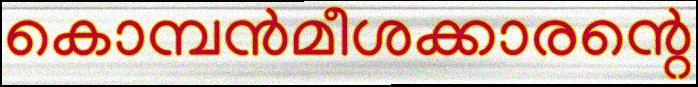
കൊമ്പൻമീശക്കാരന്റെ